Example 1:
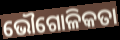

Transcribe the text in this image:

ଭୌଗୋଳିକତା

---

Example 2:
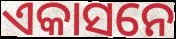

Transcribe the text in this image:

ଏକାସନେ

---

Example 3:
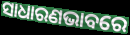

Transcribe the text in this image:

ସାଧାରଣଭାବରେ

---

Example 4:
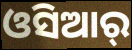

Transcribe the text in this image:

ଓସିଆର୍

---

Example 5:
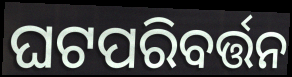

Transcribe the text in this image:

ଘଟପରିବର୍ତ୍ତନ